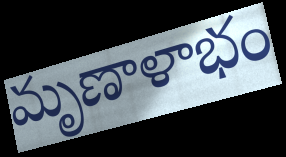
మృణాళాభం